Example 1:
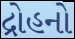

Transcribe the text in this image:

દ્રોહનો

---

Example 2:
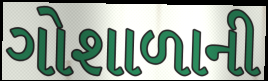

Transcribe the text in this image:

ગોશાળાની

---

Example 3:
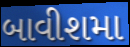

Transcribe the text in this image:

બાવીશમા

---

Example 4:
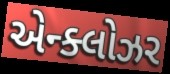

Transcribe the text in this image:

એન્ક્લોઝર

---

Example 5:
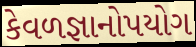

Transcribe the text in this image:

કેવળજ્ઞાનોપયોગ